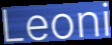
Leoni